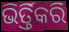
ଭିର୍ତ୍ତିକରି